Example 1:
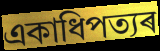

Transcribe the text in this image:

একাধিপত্যৰ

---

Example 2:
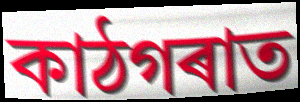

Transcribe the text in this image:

কাঠগৰাত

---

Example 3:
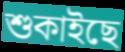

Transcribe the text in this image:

শুকাইছে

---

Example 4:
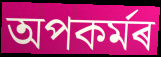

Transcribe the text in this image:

অপকৰ্মৰ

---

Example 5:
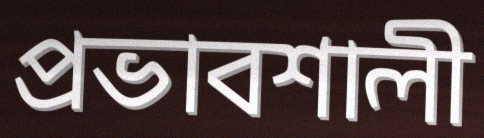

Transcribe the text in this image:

প্ৰভাবশালী